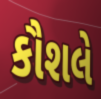
કૌશલે